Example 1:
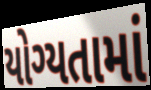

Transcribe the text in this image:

યોગ્યતામાં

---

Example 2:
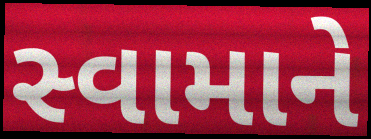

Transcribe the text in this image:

સ્વામાને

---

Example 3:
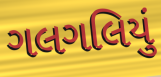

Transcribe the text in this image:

ગલગલિયું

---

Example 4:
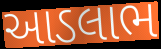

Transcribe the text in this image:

આડલાભ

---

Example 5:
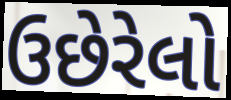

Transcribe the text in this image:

ઉછેરેલો